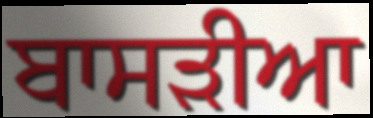
ਬਾਸੜੀਆ